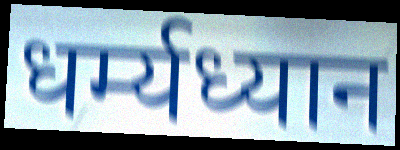
धर्म्यध्यान